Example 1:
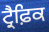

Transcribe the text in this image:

ਟ੍ਰੈਫ਼ਿਕ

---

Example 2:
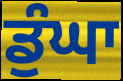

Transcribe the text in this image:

ਡੁੰਘਾ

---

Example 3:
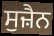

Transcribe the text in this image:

ਸੁਜ਼ੈਨ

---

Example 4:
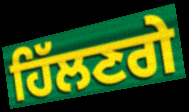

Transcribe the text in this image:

ਹਿੱਲਣਗੇ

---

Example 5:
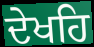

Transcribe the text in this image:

ਦੇਖਹਿ